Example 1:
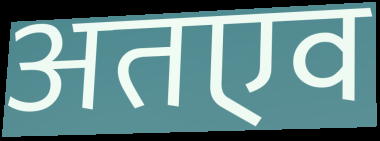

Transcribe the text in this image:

अतएव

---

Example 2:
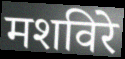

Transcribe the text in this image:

मशविरे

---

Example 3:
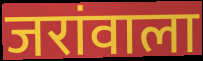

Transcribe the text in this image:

जरांवाला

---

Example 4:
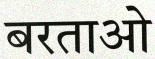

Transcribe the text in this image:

बरताओ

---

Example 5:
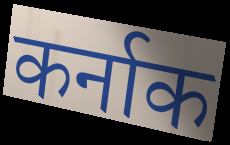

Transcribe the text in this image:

कर्नाक